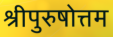
श्रीपुरुषोत्तम